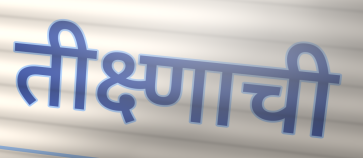
तीक्ष्णाची